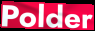
Polder